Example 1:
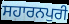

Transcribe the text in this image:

ਸਹਾਰਨਪੁਰੀ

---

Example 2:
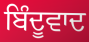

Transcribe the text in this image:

ਬਿੰਦੂਵਾਦ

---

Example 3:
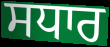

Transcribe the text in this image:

ਸਧਾਰ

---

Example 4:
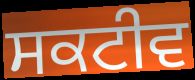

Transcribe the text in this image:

ਸਕਟੀਵ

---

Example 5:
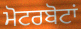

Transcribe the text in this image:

ਮੋਟਰਬੋਟਾਂ